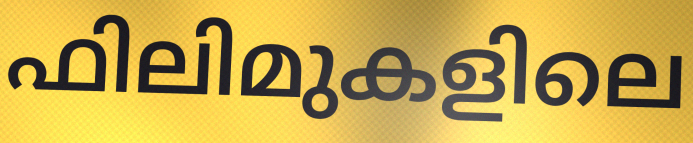
ഫിലിമുകളിലെ